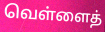
வெள்ளைத்